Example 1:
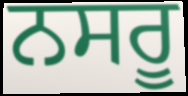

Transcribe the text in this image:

ਨਸਰੂ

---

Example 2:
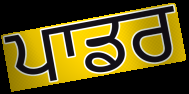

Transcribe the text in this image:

ਪਾਡਰ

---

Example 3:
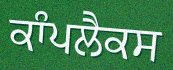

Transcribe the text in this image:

ਕਾੰਪਲੈਕਸ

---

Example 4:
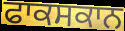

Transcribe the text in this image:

ਫਾਕਸਕਾਨ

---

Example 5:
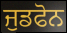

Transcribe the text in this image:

ਜੁਡਫੋਨ